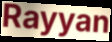
Rayyan